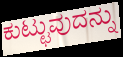
ಕುಟ್ಟುವುದನ್ನು